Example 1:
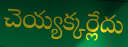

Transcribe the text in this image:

చెయ్యక్కర్లేదు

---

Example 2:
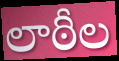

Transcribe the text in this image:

లాఠీల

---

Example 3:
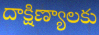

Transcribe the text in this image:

దాక్షిణ్యాలకు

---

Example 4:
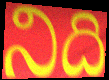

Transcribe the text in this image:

నిది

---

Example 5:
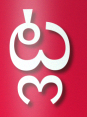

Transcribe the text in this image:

ట్ల